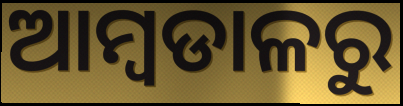
ଆମ୍ବଡାଳରୁ